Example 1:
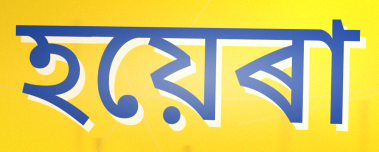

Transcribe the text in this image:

হয়েৰা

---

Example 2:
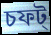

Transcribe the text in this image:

চফট্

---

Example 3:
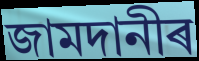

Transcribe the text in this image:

জামদানীৰ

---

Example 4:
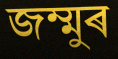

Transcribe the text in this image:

জম্মুৰ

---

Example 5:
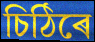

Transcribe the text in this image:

চিঠিৰে